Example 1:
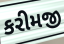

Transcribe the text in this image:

કરીમજી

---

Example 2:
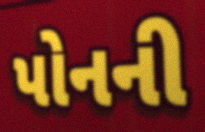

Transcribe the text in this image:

પોનની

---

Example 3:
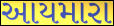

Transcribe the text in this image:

આયમારા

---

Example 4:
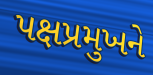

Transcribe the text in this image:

પક્ષપ્રમુખને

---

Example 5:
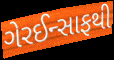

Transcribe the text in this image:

ગેરઈન્સાફથી